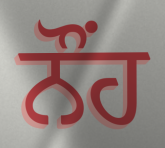
ਨੌੰਹ